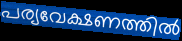
പര്യവേക്ഷണത്തിൽ